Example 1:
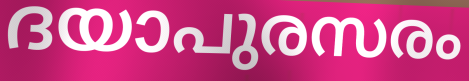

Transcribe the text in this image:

ദയാപുരസരം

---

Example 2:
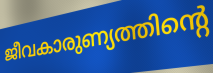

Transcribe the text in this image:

ജീവകാരുണ്യത്തിന്റെ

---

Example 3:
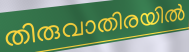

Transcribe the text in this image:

തിരുവാതിരയിൽ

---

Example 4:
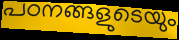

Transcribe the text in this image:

പഠനങ്ങളുടെയും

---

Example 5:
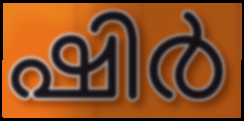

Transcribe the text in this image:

ഷിർ